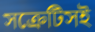
সক্রেটিসই